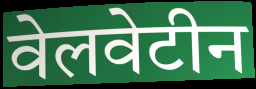
वेलवेटीन